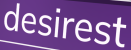
desirest